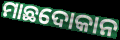
ମାଛଦୋକାନ